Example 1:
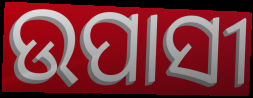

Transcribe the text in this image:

ଉପାସୀ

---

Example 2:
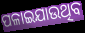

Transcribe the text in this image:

ପଳାଇଯାଉଥିବ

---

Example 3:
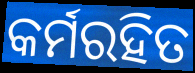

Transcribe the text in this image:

କର୍ମରହିତ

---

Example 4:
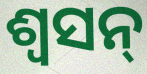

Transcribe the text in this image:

ଶ୍ୱସନ୍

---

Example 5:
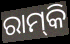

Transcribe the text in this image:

ରାମ୍‌କି